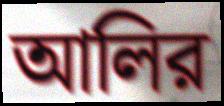
আলির